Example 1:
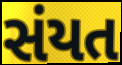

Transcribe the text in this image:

સંયત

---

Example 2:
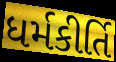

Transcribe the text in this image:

ધર્મકીર્તિ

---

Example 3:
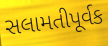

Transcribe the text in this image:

સલામતીપૂર્વક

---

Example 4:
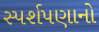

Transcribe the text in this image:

સ્પર્શપણાનો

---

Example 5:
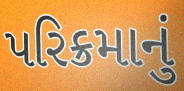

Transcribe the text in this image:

પરિક્રમાનું